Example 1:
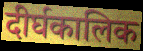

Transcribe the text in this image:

दीर्घकालिक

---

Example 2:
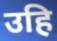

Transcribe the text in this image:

उहि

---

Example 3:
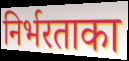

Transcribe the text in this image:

निर्भरताका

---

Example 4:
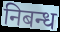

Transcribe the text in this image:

निबन्ध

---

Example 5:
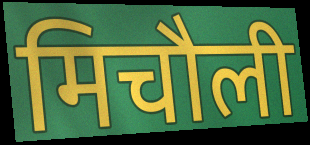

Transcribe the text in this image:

मिचौली